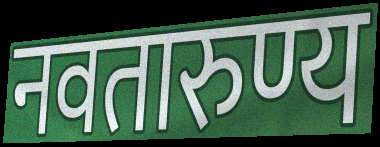
नवतारुण्य